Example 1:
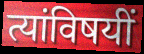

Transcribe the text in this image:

त्यांविषयीं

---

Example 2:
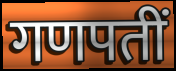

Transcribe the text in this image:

गणपतीं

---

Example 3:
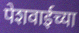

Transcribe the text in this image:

पेशवाईच्या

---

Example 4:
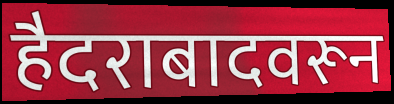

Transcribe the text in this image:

हैदराबादवरून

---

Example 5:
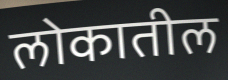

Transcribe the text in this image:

लोकातील